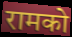
रामको